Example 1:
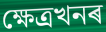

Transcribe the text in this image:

ক্ষেত্ৰখনৰ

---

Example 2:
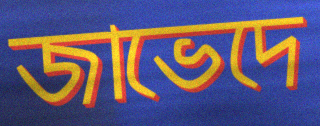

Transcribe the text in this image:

জাভেদে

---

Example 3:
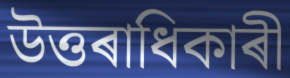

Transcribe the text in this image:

উত্তৰাধিকাৰী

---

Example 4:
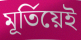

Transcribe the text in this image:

মূৰ্তিয়েই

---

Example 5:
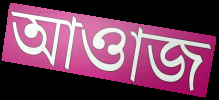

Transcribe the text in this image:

আওাজ